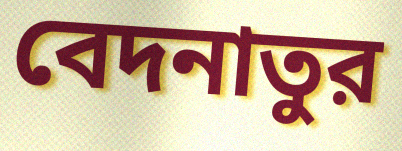
বেদনাতুর